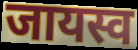
जायस्व